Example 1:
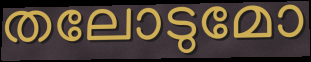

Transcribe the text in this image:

തലോടുമോ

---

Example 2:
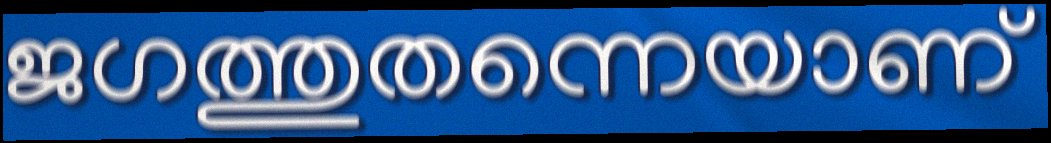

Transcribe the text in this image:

ജഗത്തുതന്നെയാണ്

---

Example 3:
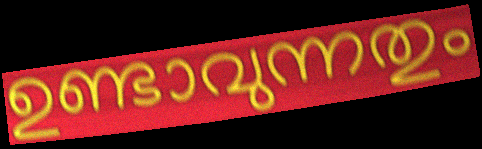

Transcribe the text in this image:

ഉണ്ടാവുന്നതും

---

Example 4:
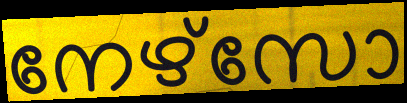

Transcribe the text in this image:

നേഴ്സോ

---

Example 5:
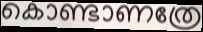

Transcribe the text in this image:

കൊണ്ടാണത്രേ